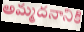
అమ్మదనానికి